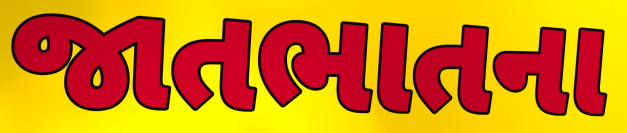
જાતભાતના